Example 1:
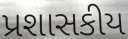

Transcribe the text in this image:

પ્રશાસકીય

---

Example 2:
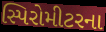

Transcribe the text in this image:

સ્પિરોમીટરના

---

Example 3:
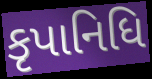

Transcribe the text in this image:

કૃપાનિધિ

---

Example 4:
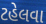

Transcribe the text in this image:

ટહેલવા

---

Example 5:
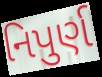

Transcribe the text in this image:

નિપુર્ણ